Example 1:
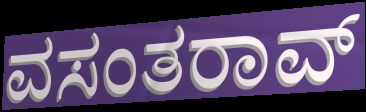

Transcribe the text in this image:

ವಸಂತರಾವ್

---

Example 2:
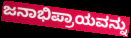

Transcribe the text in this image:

ಜನಾಭಿಪ್ರಾಯವನ್ನು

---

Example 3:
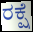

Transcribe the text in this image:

ರಕ್ಷೆ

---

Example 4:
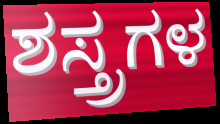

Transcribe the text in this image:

ಶಸ್ತ್ರಗಳ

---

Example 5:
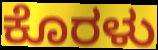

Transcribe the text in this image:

ಕೊರಳು